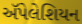
ઍપેલેશિયન